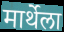
मार्थेला